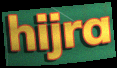
hijra